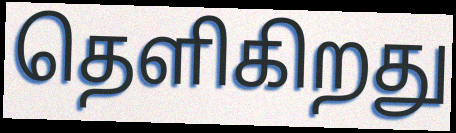
தெளிகிறது